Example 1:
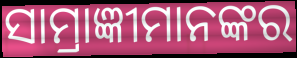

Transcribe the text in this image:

ସାମ୍ରାଜ୍ଞୀମାନଙ୍କର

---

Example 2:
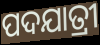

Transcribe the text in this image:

ପଦଯାତ୍ରୀ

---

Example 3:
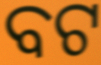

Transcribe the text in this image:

ବଟ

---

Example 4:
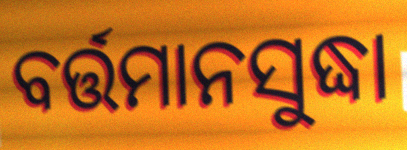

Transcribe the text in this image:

ବର୍ତ୍ତମାନସୁଦ୍ଧା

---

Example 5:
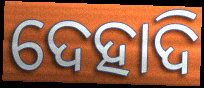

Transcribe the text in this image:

ଦେହାଦି